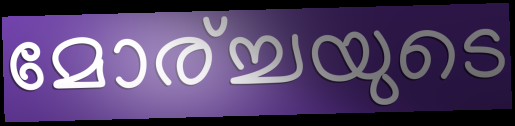
മോര്ച്ചയുടെ